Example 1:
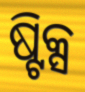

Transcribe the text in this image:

ଷ୍ଟିକ୍ସ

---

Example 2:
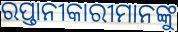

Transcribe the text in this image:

ରପ୍ତାନୀକାରୀମାନଙ୍କୁ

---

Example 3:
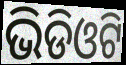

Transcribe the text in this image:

ଭିଡିଓଟି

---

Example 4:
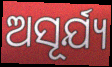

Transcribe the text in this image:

ଅସୂର୍ଯ୍ୟ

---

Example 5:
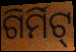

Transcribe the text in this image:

ଗିର୍ମିଟ୍